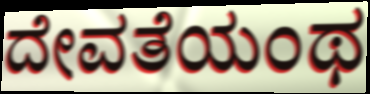
ದೇವತೆಯಂಥ